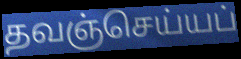
தவஞ்செய்யப்